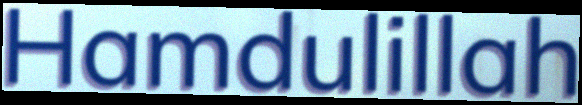
Hamdulillah